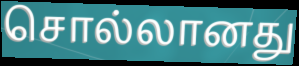
சொல்லானது